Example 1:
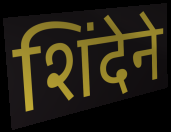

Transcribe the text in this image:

शिंदेने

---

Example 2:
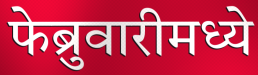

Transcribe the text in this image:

फेब्रुवारीमध्ये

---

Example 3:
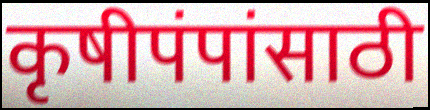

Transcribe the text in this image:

कृषीपंपांसाठी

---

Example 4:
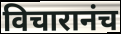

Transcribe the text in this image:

विचारानंच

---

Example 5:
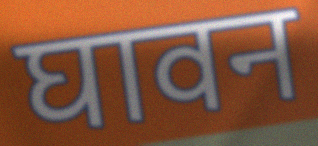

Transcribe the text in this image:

घावन